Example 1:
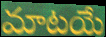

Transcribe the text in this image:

మాటయే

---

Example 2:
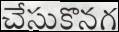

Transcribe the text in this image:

చేసుకొనగ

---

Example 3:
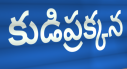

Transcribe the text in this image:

కుడిప్రక్కన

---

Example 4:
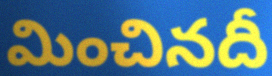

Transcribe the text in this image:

మించినదీ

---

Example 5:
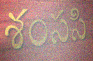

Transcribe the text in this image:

శంససి